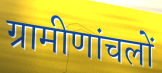
ग्रामीणांचलों